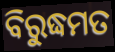
ବିରୁଦ୍ଧମତ